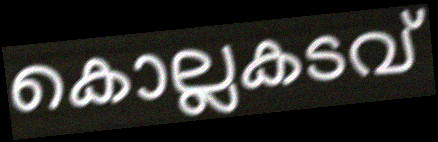
കൊല്ലകടവ്